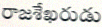
రాజశేఖరుడు